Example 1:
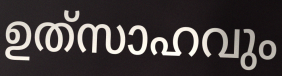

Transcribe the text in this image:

ഉത്‌സാഹവും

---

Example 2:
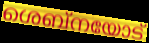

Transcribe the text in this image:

ശെബ്നയോട്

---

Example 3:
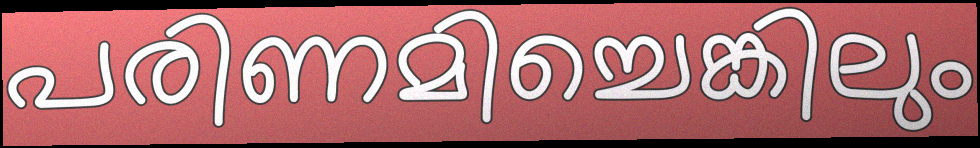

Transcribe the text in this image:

പരിണമിച്ചെങ്കിലും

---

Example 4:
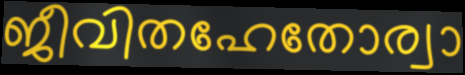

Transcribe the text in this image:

ജീവിതഹേതോര്വാ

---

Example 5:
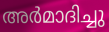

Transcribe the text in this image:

അർമാദിച്ചു